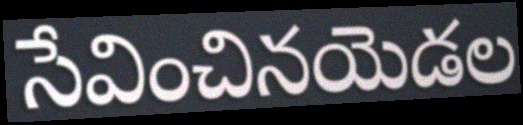
సేవించినయెడల